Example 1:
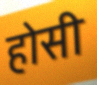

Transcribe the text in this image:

होसी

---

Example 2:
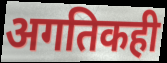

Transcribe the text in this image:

अगतिकही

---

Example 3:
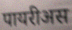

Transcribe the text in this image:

पायरीअस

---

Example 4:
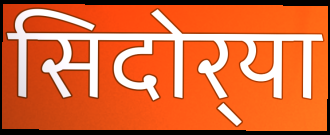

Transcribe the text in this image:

सिदोर्‍या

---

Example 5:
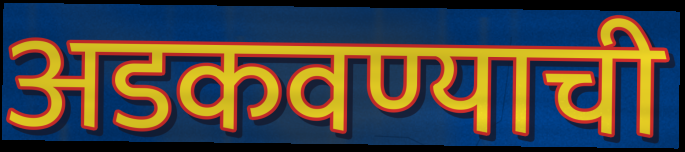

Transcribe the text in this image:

अडकवण्याची